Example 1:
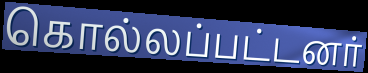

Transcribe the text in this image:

கொல்லப்பட்டனர்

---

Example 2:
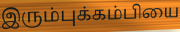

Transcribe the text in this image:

இரும்புக்கம்பியை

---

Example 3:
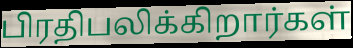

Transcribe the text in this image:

பிரதிபலிக்கிறார்கள்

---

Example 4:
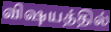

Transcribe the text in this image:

விஷயத்தில்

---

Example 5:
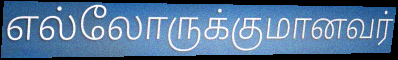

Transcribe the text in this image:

எல்லோருக்குமானவர்